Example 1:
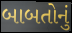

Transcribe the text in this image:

બાબતોનું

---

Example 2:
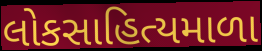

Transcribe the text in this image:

લોકસાહિત્યમાળા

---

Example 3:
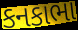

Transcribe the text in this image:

કનકાભા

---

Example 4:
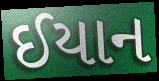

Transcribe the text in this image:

ઈયાન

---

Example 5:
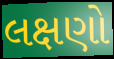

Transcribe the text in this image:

લક્ષણો